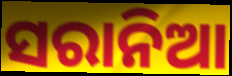
ସରାନିଆ